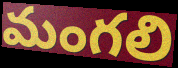
మంగలి